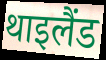
थाइलैंड